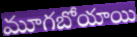
మూగబోయాయి